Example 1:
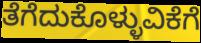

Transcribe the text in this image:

ತೆಗೆದುಕೊಳ್ಳುವಿಕೆಗೆ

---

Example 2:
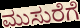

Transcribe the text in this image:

ಮುಸುರೆಗೆ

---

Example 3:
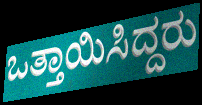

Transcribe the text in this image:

ಒತ್ತಾಯಿಸಿದ್ದರು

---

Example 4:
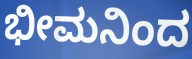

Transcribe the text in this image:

ಭೀಮನಿಂದ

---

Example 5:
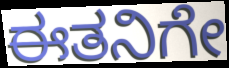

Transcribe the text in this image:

ಈತನಿಗೇ